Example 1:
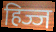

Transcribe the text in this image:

हिज्ज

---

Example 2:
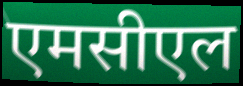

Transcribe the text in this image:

एमसीएल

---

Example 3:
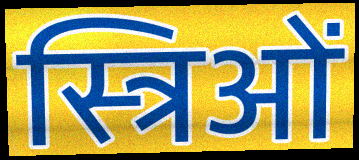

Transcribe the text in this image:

स्त्रिओं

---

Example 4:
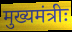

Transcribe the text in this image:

मुख्यमंत्रीः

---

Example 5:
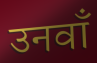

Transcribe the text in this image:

उनवाँ